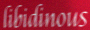
libidinous